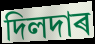
দিলদাৰ